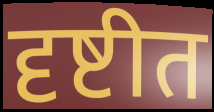
दृष्टीत